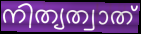
നിത്യത്വാത്